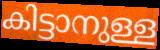
കിട്ടാനുള്ള